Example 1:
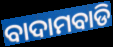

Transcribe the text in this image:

ବାଦାମବାଡି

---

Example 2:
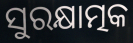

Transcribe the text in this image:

ସୁରକ୍ଷାତ୍ମକ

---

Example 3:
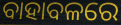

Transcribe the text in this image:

ବାହାବଳରେ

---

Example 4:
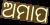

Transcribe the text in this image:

ଅମାପ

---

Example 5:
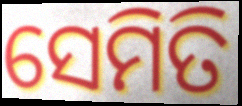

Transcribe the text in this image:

ସେମିତି